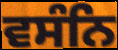
ਵਸੰਨਿ